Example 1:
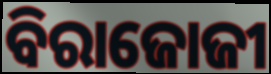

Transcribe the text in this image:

ବିରାଜୋଜୀ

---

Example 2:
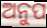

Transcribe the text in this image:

ଅନୁପ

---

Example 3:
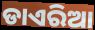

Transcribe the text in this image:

ଡାଏରିଆ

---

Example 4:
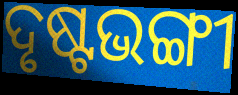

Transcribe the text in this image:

ଦୃଷ୍ଟଭଙ୍ଗୀ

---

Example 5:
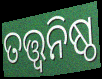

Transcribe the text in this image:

ତତ୍ତ୍ୱନିଷ୍ଠ